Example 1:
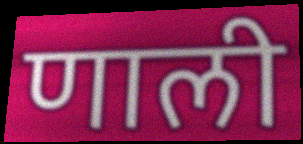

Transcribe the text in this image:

णाली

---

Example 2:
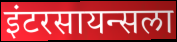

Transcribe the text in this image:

इंटरसायन्सला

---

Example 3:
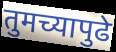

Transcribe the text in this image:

तुमच्यापुढे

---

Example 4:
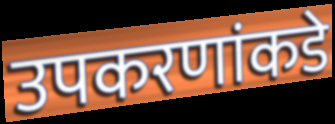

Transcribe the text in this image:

उपकरणांकडे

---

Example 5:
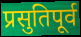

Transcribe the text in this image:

प्रसुतिपूर्व